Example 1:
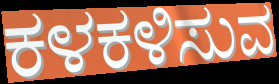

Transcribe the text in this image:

ಕಳಕಳಿಸುವ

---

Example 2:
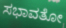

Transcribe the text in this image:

ಸಭಾವತೋ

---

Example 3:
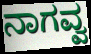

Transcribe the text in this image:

ನಾಗವ್ವ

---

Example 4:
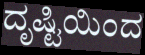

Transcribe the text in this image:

ದೃಷ್ಟಿಯಿಂದ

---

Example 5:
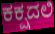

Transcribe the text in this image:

ಕಕ್ಷದಲಿ